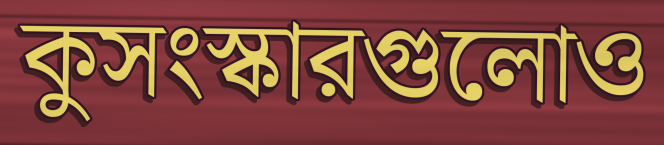
কুসংস্কারগুলোও